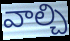
వాల్చి